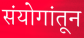
संयोगांतून